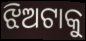
ଝିଅଟାକୁ